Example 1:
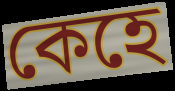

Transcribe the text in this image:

কেহে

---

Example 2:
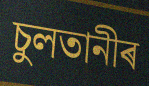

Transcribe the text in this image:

চুলতানীৰ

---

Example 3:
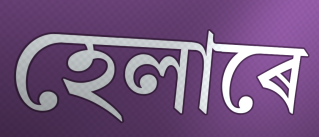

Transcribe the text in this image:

হেলাৰে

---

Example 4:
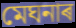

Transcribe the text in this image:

মেঘনাৰ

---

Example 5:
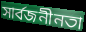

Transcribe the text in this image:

সাৰ্বজনীনতা